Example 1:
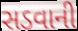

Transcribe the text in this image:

સડવાની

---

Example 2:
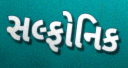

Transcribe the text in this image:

સલ્ફોનિક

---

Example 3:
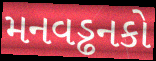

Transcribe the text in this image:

મનવડ્ઢનકો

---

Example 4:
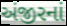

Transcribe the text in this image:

અંજીરનાં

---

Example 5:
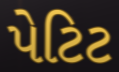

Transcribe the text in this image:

પેટિટ